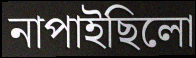
নাপাইছিলো